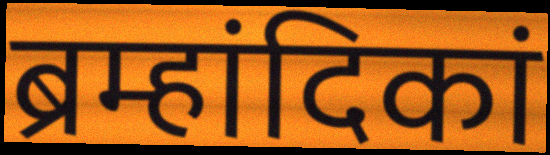
ब्रम्हांदिकां